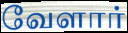
வேளார்